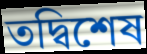
তদ্বিশেষ